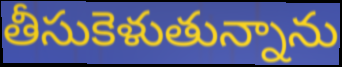
తీసుకెళుతున్నాను